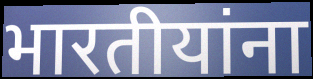
भारतीयांना